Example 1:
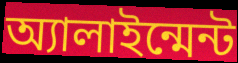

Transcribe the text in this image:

অ্যালাইন্মেন্ট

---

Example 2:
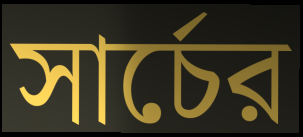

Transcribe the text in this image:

সার্চের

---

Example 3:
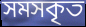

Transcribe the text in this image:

সমসকৃত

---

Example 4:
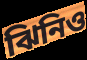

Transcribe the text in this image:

ঝিনিও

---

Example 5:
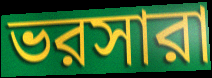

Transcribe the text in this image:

ভরসারা